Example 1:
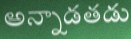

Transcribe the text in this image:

అన్నాడతడు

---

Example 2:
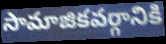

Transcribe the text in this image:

సామాజికవర్గానికి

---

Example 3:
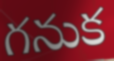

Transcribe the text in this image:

గనుక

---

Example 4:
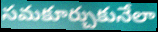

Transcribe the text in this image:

సమకూర్చుకునేలా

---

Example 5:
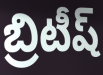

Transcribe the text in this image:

బ్రిటీష్